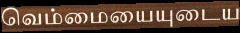
வெம்மையையுடைய